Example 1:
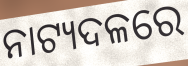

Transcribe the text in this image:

ନାଟ୍ୟଦଳରେ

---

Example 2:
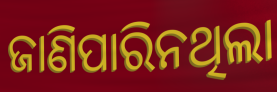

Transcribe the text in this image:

ଜାଣିପାରିନଥିଲା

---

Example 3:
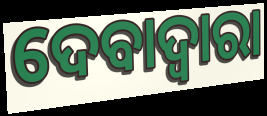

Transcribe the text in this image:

ଦେବାଦ୍ବାରା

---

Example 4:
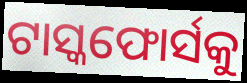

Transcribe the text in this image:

ଟାସ୍କଫୋର୍ସକୁ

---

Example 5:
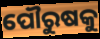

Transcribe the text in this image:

ପୌରୁଷକୁ